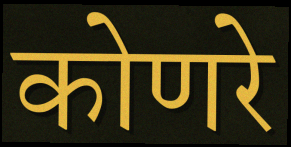
कोणरे